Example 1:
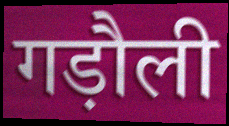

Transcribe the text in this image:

गड़ौली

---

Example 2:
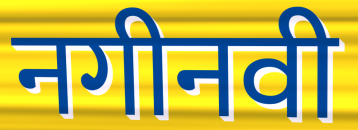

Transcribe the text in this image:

नगीनवी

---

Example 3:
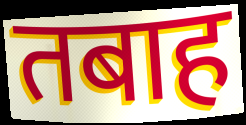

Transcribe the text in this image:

तबाह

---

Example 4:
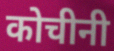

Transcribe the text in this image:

कोचीनी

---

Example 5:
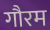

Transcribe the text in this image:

गौरम